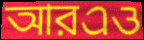
আরএও